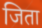
जिता